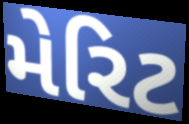
મેરિટ